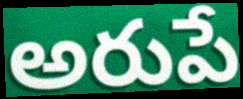
అరుపే